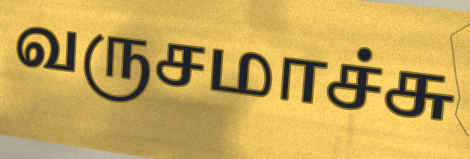
வருசமாச்சு